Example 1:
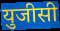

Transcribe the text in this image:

युजीसी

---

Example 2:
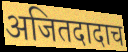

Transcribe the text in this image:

अजितदादाच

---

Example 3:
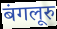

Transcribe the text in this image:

बंगलूरु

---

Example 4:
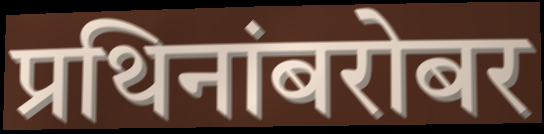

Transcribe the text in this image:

प्रथिनांबरोबर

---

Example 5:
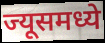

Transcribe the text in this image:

ज्यूसमध्ये